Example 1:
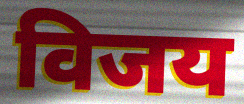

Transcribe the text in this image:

विजय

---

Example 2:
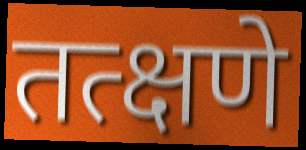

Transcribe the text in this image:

तत्क्षणे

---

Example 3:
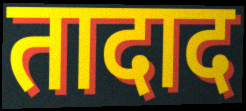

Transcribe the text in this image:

तादाद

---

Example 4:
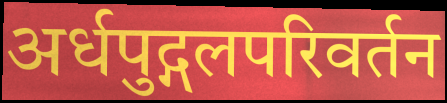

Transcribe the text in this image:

अर्धपुद्गलपरिवर्तन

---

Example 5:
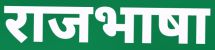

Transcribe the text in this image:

राजभाषा